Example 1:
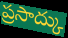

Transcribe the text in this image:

ప్రసాద్కు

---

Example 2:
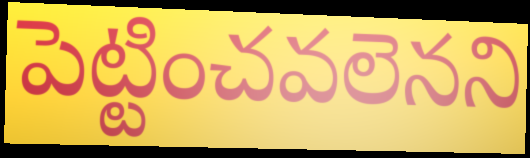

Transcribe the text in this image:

పెట్టించవలెనని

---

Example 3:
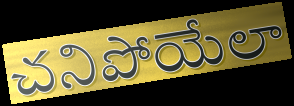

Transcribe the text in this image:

చనిపోయేలా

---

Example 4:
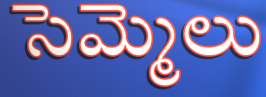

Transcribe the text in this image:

సెమ్మెలు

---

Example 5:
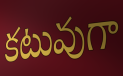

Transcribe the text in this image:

కటువుగా